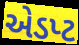
એડપ્ટ